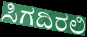
ಸಿಗದಿರಲಿ